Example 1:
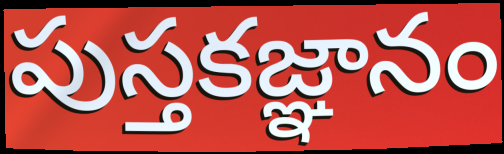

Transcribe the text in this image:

పుస్తకజ్ఞానం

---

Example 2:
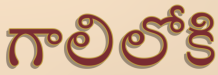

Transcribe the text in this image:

గాలిలోకి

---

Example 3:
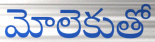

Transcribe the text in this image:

మోలెకుతో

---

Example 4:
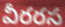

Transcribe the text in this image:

వీరరస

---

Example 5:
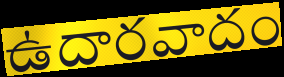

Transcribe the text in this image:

ఉదారవాదం